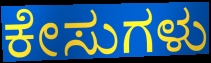
ಕೇಸುಗಳು